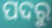
ପଦରୁ